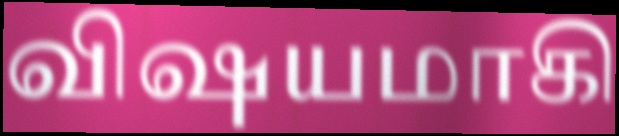
விஷயமாகி